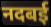
नदबई